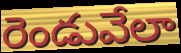
రెండువేలా